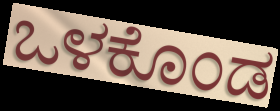
ಒಳಕೊಂಡ